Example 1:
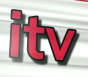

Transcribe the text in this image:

itv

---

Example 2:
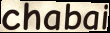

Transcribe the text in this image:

chabai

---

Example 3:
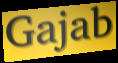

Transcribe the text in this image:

Gajab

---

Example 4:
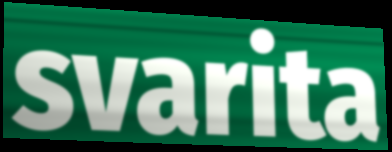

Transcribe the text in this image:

svarita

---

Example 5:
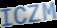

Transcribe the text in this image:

ICZM